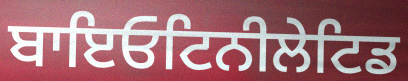
ਬਾਇਓਟਿਨੀਲੇਟਿਡ